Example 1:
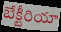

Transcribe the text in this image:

బేక్టీరియా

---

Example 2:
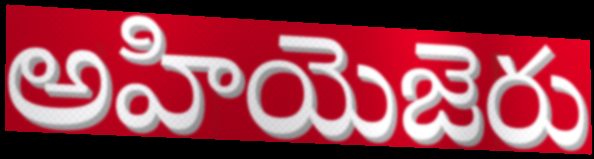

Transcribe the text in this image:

అహియెజెరు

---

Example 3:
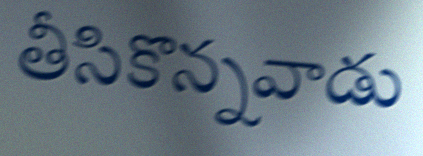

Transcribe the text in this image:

తీసికొన్నవాడు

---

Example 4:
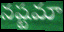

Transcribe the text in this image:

నష్టమా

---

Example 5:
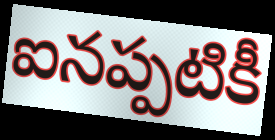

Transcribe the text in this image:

ఐనప్పటికీ